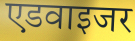
एडवाइजर